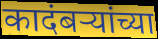
कादंबऱ्यांच्या